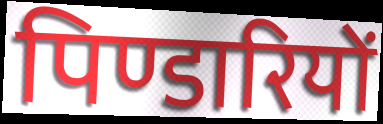
पिण्डारियों